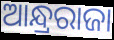
ଆନ୍ଧ୍ରରାଜା